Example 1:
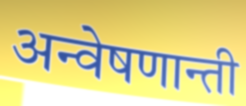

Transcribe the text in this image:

अन्वेषणान्ती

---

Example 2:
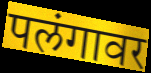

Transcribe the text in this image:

पलंगावर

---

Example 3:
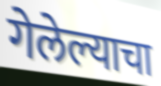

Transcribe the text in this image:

गेलेल्याचा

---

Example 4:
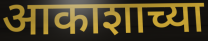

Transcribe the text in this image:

आकाशाच्या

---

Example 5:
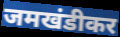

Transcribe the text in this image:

जमखंडीकर